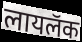
लायलॅक